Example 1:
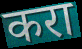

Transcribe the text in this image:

करा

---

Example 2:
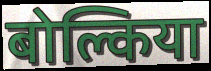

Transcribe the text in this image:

बोल्किया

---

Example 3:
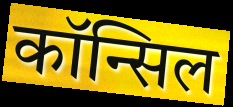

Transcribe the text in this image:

कॉन्सिल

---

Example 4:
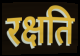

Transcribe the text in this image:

रक्षति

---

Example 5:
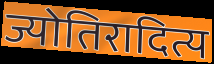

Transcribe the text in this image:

ज्योतिरादित्य